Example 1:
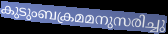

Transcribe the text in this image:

കുടുംബക്രമമനുസരിച്ചു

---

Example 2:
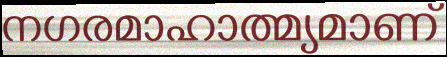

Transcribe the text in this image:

നഗരമാഹാത്മ്യമാണ്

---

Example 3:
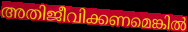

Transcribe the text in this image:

അതിജീവിക്കണമെങ്കിൽ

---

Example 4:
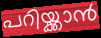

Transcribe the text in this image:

പറിയ്ക്കാൻ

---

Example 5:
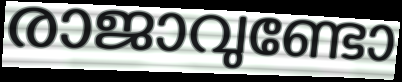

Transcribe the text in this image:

രാജാവുണ്ടോ